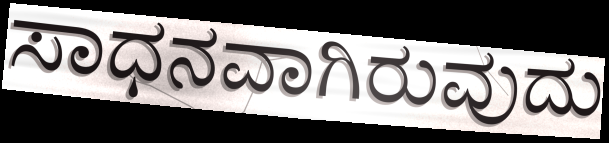
ಸಾಧನವಾಗಿರುವುದು